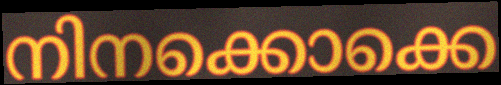
നിനക്കൊക്കെ